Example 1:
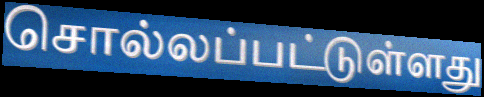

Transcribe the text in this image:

சொல்லப்பட்டுள்ளது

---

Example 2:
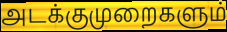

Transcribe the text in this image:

அடக்குமுறைகளும்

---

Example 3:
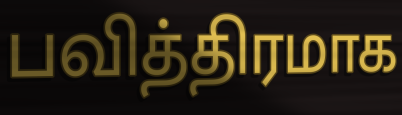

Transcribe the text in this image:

பவித்திரமாக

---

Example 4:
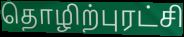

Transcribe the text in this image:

தொழிற்புரட்சி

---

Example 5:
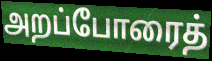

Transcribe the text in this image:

அறப்போரைத்